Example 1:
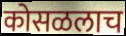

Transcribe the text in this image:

कोसळलाच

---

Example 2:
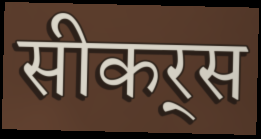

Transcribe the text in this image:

सीकर्स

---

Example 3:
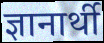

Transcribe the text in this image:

ज्ञानार्थी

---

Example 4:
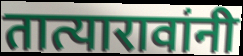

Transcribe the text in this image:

तात्यारावांनी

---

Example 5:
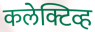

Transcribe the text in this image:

कलेक्टिव्ह